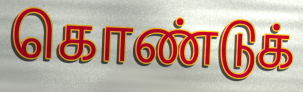
கொண்டுக்